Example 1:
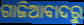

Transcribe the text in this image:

ଗାଜିଆବାଦରୁ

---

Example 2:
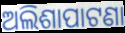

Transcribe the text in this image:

ଅଲିଶାପାଟଣା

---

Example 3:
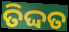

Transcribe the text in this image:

ତିଦ୍ଦତ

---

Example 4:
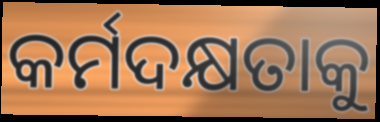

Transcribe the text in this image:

କର୍ମଦକ୍ଷତାକୁ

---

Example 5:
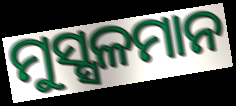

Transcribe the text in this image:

ମୁସ୍ସଳମାନ